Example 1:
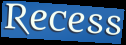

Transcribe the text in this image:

Recess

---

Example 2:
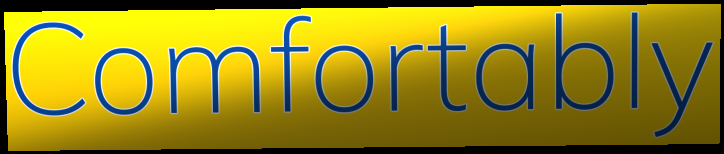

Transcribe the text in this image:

Comfortably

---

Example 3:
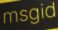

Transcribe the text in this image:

msgid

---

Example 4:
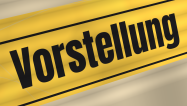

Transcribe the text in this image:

Vorstellung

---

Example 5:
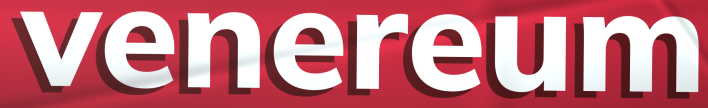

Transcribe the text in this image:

venereum